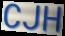
CJH